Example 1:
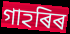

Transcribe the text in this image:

গাহৰিৰ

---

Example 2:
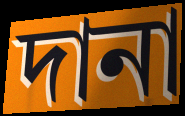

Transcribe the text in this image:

দানা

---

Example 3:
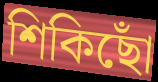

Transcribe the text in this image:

শিকিছোঁ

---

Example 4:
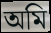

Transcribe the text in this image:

অমি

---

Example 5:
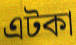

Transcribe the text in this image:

এটকা